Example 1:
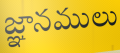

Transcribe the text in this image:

జ్ఞానములు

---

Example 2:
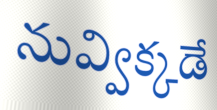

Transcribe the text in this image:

నువ్విక్కడే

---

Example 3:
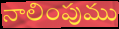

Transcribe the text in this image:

నాలింపుము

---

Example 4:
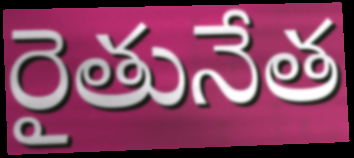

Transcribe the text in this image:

రైతునేత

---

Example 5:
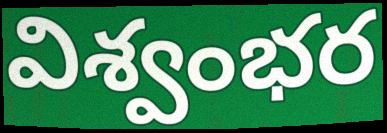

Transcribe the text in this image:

విశ్వంభర